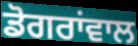
ਡੋਗਰਾਂਵਾਲ